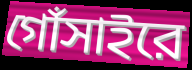
গোঁসাইরে